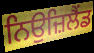
ਨਿਉਜ਼ਿਲੈਂਡ